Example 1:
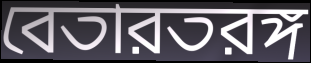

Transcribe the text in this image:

বেতারতরঙ্গ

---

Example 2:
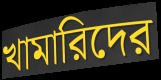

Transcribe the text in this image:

খামারিদের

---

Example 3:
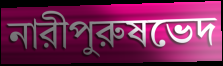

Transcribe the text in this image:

নারীপুরুষভেদ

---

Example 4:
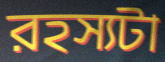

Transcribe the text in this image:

রহস্যটা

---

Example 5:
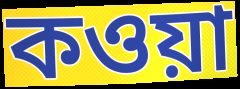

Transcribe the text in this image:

কওয়া